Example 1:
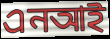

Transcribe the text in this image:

এনআই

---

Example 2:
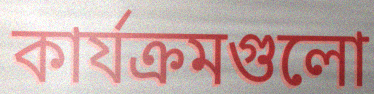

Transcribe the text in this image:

কার্যক্রমগুলো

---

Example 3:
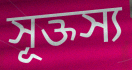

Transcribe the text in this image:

সূক্তস্য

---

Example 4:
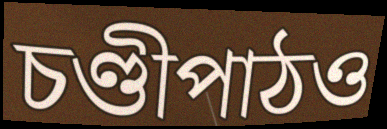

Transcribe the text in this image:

চণ্ডীপাঠও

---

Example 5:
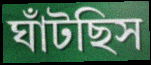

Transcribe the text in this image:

ঘাঁটছিস